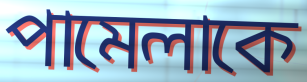
পামেলাকে